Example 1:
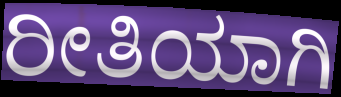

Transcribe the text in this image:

ರೀತಿಯಾಗಿ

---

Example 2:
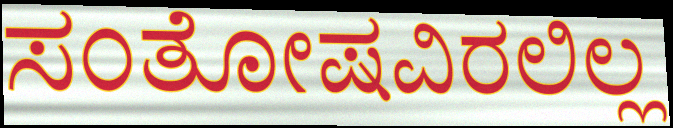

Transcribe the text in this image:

ಸಂತೋಷವಿರಲಿಲ್ಲ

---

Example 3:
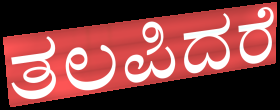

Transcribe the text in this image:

ತಲಪಿದರೆ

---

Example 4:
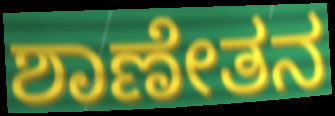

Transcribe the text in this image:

ಶಾಣೇತನ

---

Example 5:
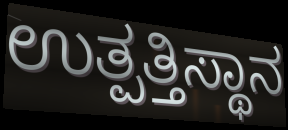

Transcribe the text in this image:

ಉತ್ಪತ್ತಿಸ್ಥಾನ